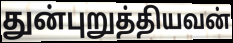
துன்புறுத்தியவன்